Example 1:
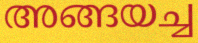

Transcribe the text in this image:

അങ്ങയച്ച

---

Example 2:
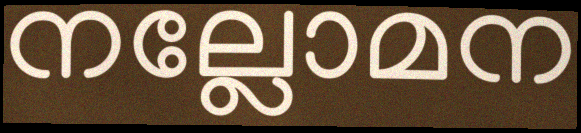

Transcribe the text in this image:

നല്ലോമന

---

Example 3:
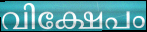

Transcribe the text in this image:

വിക്ഷേപം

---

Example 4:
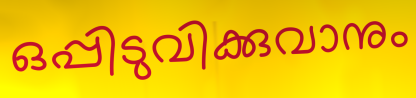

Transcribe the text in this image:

ഒപ്പിടുവിക്കുവാനും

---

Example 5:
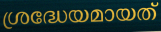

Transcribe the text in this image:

ശ്രദ്ധേയമായത്